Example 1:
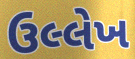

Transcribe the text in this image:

ઉલ્લેખ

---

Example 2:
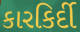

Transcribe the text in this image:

કારકિર્દી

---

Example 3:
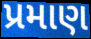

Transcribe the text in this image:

પ્રમાણ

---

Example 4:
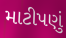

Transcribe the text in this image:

માટીપણું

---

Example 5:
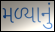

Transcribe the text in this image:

મળ્યાનું